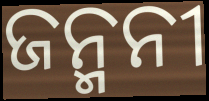
ଜନ୍ମନୀ